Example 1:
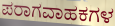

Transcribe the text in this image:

ಪರಾಗವಾಹಕಗಳ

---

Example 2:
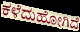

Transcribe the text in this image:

ಕಳೆದುಹೋಗಿದೆ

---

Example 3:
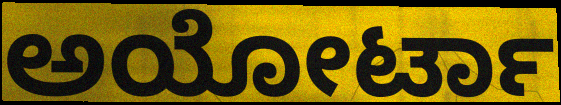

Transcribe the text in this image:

ಅಯೋರ್ಟಾ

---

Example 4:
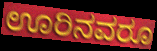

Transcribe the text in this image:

ಊರಿನವರೂ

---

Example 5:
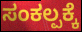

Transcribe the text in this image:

ಸಂಕಲ್ಪಕ್ಕೆ